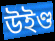
উইণ্ড